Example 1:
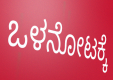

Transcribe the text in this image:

ಒಳನೋಟಕ್ಕೆ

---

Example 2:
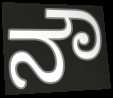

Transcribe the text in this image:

ನೌ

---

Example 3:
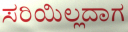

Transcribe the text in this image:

ಸರಿಯಿಲ್ಲದಾಗ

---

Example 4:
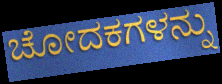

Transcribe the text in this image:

ಚೋದಕಗಳನ್ನು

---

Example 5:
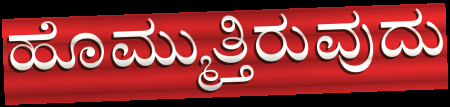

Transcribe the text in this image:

ಹೊಮ್ಮುತ್ತಿರುವುದು